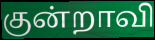
குன்றாவி